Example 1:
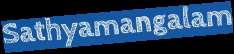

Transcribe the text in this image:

Sathyamangalam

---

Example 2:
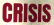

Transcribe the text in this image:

CRISIS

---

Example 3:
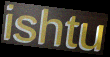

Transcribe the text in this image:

ishtu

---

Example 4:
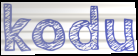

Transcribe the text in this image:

kodu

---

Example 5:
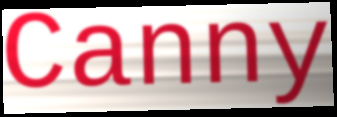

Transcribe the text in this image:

Canny